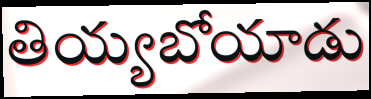
తియ్యబోయాడు